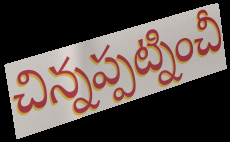
చిన్నప్పట్నించీ